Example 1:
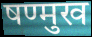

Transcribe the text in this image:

षण्मुख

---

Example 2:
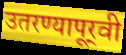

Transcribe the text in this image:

उतरण्यापूर्वी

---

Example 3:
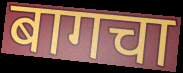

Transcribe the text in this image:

बागचा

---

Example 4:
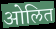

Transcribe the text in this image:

ओलित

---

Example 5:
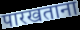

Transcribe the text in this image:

पारखताना